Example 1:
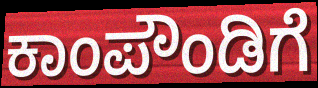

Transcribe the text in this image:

ಕಾಂಪೌಂಡಿಗೆ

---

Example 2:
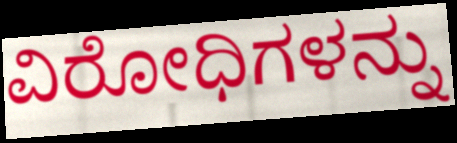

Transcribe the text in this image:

ವಿರೋಧಿಗಳನ್ನು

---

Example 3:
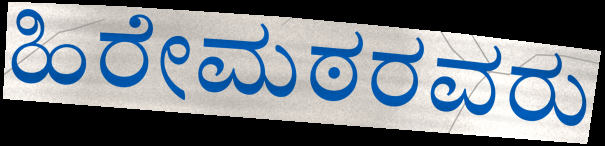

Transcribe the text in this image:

ಹಿರೇಮಠರವರು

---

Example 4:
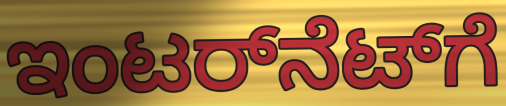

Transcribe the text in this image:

ಇಂಟರ್‌ನೆಟ್‌ಗೆ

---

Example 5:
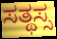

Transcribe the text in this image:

ಸತ್ಥಸ್ಸ